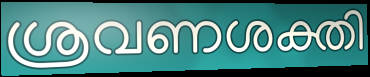
ശ്രവണശക്തി